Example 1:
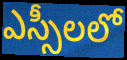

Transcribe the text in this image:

ఎస్సీలలో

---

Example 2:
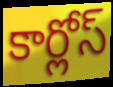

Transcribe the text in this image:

కార్లోస్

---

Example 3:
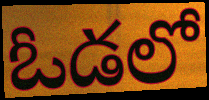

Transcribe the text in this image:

ఓడలో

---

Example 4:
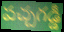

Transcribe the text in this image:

పచ్చగడ్డీ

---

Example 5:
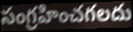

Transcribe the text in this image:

సంగ్రహించగలదు